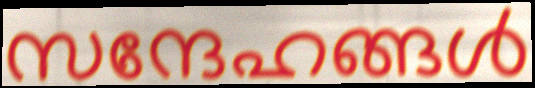
സന്ദേഹങ്ങൾ